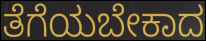
ತೆಗೆಯಬೇಕಾದ